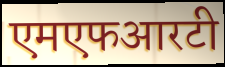
एमएफआरटी